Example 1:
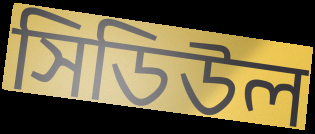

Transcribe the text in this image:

সিডিউল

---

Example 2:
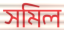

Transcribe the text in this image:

সমিল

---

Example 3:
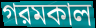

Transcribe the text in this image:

গরমকাল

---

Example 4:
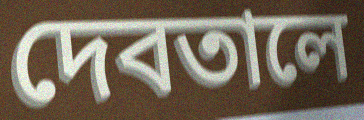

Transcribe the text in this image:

দেবতালে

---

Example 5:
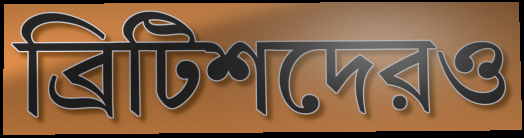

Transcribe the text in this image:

ব্রিটিশদেরও